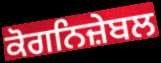
ਕੋਗਨਿਜ਼ੇਬਲ